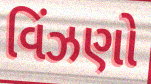
વિંઝણો